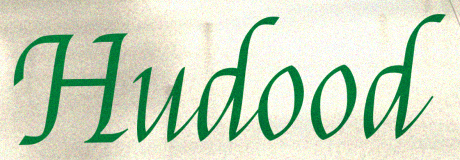
Hudood